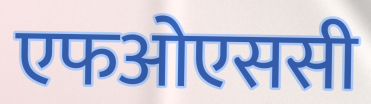
एफओएससी